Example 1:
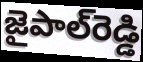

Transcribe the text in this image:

జైపాల్‌రెడ్డి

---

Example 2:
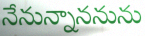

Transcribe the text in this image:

నేనున్నాననును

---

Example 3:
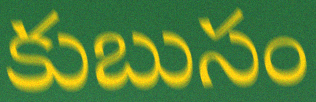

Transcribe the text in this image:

కుబుసం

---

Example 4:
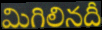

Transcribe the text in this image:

మిగిలినదీ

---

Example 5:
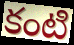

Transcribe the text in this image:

కంటి